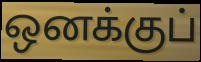
ஒனக்குப்